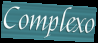
Complexo